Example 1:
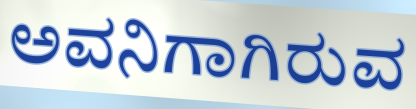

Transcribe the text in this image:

ಅವನಿಗಾಗಿರುವ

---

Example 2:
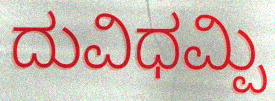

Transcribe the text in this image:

ದುವಿಧಮ್ಪಿ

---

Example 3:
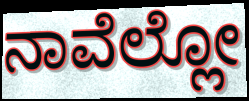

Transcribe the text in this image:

ನಾವೆಲ್ಲೋ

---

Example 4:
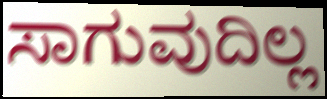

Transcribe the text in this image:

ಸಾಗುವುದಿಲ್ಲ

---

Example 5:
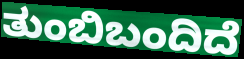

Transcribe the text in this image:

ತುಂಬಿಬಂದಿದೆ